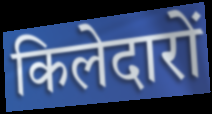
किलेदारों